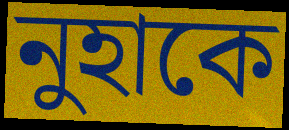
নুহাকে